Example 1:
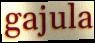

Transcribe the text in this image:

gajula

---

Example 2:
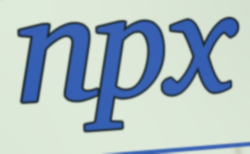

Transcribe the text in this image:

npx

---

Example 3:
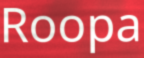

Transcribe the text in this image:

Roopa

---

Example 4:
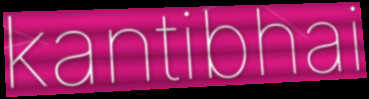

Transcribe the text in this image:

kantibhai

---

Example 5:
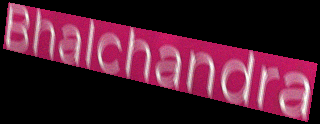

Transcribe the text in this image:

Bhalchandra